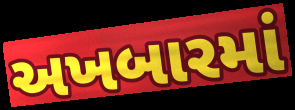
અખબારમાં